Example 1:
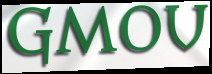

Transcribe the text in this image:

GMOU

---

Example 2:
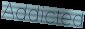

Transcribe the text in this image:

Addicted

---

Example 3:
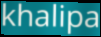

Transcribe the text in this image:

khalipa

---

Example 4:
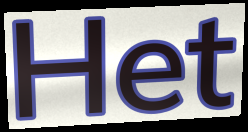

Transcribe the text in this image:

Het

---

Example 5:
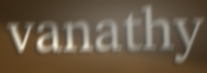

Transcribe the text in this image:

vanathy